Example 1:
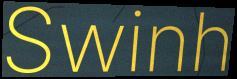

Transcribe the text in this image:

Swinh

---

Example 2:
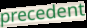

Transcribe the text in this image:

precedent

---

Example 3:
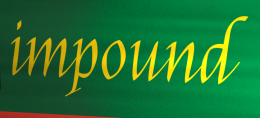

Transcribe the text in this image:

impound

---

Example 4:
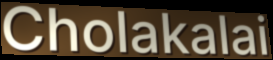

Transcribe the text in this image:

Cholakalai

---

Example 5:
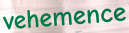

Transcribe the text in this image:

vehemence